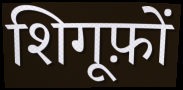
शिगूफ़ों